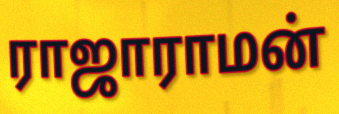
ராஜாராமன்